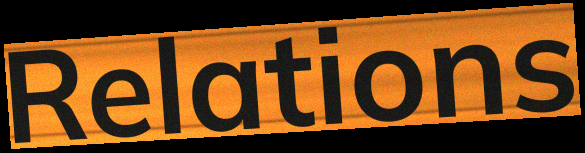
Relations